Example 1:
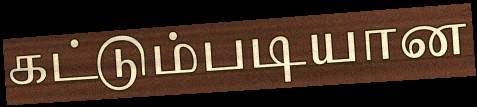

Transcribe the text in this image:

கட்டும்படியான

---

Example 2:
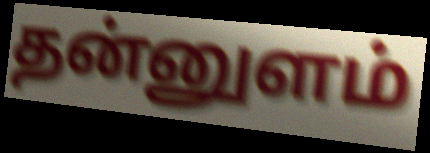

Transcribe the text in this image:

தன்னுளம்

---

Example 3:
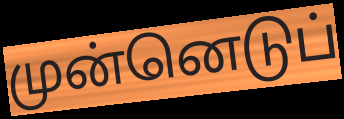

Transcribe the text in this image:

முன்னெடுப்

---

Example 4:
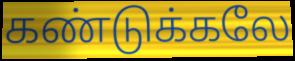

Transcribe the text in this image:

கண்டுக்கலே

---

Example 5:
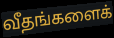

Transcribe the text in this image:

வீதங்களைக்